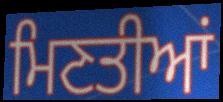
ਮਿਣਤੀਆਂ